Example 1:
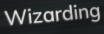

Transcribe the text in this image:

Wizarding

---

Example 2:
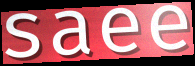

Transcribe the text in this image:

saee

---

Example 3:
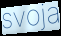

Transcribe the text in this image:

svoja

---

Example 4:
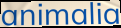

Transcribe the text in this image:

animalia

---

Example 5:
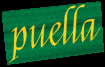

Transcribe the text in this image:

puella